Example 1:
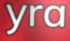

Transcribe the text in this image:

yra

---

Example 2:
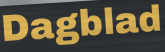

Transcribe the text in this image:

Dagblad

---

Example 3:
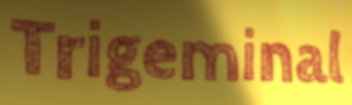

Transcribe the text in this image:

Trigeminal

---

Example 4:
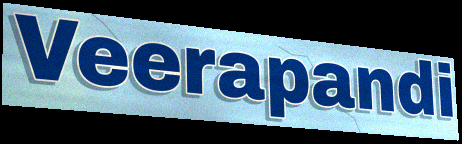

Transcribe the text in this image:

Veerapandi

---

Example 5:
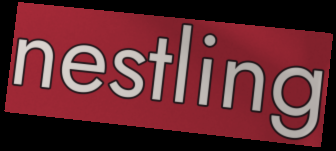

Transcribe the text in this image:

nestling